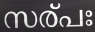
സര്പഃ